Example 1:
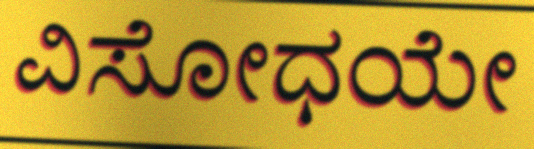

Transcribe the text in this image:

ವಿಸೋಧಯೇ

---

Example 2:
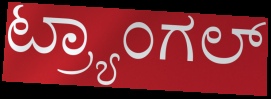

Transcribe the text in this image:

ಟ್ರ್ಯಾಂಗಲ್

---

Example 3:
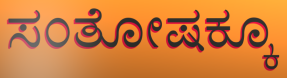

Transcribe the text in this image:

ಸಂತೋಷಕ್ಕೂ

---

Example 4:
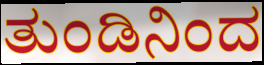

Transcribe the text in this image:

ತುಂಡಿನಿಂದ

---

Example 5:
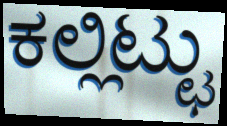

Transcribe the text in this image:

ಕಲ್ಲಿಟ್ಟು